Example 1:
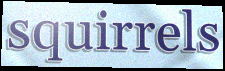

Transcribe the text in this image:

squirrels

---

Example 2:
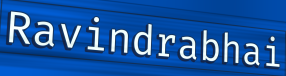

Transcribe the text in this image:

Ravindrabhai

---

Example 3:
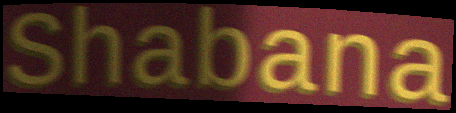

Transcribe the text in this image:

Shabana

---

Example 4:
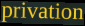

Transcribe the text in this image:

privation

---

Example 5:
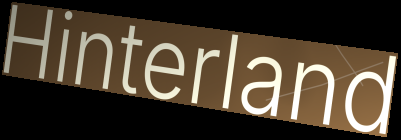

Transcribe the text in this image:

Hinterland